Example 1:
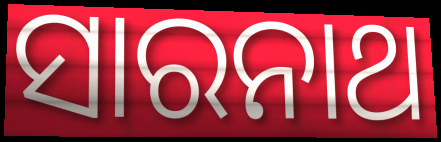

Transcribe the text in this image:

ସାରନାଥ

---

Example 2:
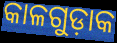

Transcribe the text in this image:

କାଳଗୁଡ଼ାକ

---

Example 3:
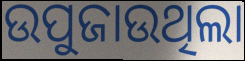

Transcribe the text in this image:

ଉପୁଜାଉଥିଲା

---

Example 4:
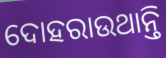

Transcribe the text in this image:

ଦୋହରାଉଥାନ୍ତି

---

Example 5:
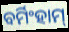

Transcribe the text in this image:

ବର୍ମିଂହାମ୍